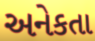
અનેકતા